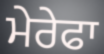
ਮੇਰੇਫਾ